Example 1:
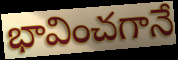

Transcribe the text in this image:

భావించగానే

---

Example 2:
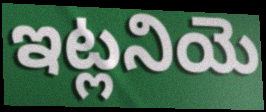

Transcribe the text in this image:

ఇట్లనియె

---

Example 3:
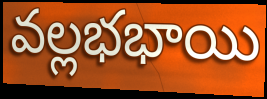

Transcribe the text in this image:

వల్లభభాయి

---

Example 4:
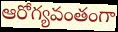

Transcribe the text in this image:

ఆరోగ్యవంతంగా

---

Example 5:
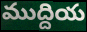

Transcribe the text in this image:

ముద్దియ